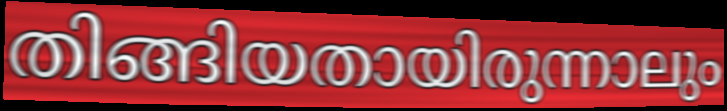
തിങ്ങിയതായിരുന്നാലും